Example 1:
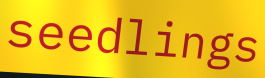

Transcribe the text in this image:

seedlings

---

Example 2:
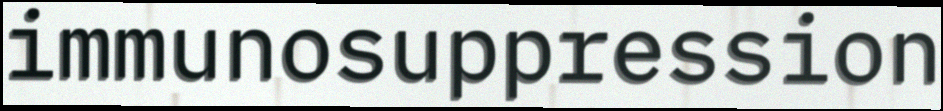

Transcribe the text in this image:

immunosuppression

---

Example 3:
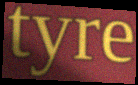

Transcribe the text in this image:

tyre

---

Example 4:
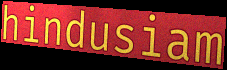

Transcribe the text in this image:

hindusiam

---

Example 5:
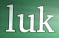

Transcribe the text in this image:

luk